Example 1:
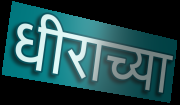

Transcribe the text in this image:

धीराच्या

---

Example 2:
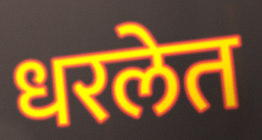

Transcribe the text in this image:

धरलेत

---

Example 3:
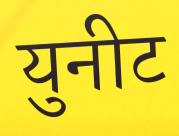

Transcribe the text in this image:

युनीट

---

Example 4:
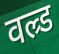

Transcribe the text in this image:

वल्र्ड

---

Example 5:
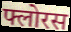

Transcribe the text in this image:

फ्लोरस